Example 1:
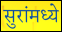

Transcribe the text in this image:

सुरांमध्ये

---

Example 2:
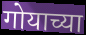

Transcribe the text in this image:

गोयाच्या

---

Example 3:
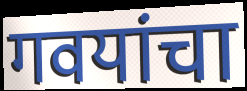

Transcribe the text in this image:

गवयांचा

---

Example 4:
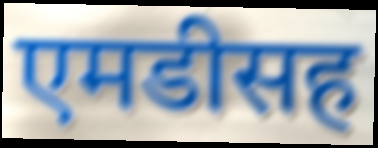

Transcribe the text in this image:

एमडीसह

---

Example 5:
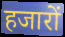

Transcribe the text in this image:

हजारों